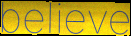
believe